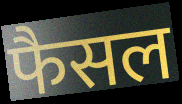
फैसल